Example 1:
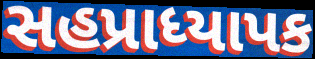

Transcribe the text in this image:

સહપ્રાધ્યાપક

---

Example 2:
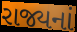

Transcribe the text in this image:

રાજ્યનાં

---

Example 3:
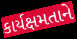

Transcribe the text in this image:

કાર્યક્ષમતાને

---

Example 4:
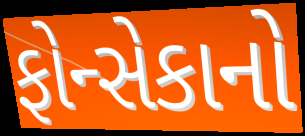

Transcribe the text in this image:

ફોન્સેકાનો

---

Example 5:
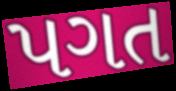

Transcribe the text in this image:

પગત